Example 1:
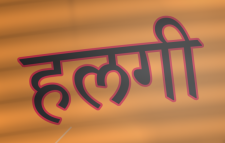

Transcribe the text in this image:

हलगी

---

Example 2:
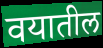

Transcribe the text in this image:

वयातील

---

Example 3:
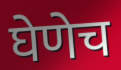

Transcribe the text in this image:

घेणेच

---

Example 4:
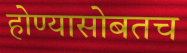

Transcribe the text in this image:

होण्यासोबतच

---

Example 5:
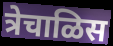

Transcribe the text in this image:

त्रेचाळिस